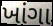
ખાંગા